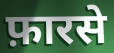
फ़ारसे